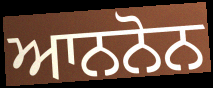
ਆਨਨੋਨ